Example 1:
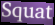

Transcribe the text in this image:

Squat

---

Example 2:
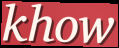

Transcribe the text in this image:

khow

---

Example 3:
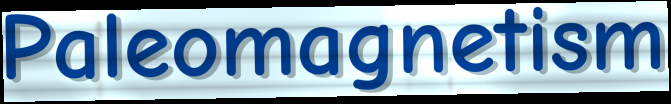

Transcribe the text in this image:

Paleomagnetism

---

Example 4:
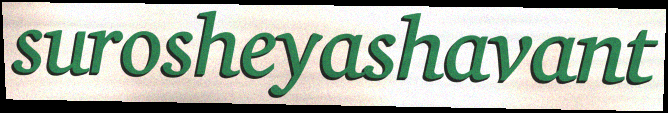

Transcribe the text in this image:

surosheyashavant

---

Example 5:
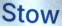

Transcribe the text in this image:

Stow